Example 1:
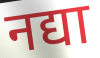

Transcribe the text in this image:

नद्या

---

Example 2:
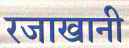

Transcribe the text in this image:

रजाखानी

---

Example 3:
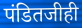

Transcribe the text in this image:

पंडितजीही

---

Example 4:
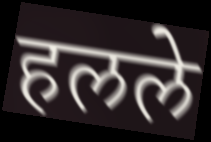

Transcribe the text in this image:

हलले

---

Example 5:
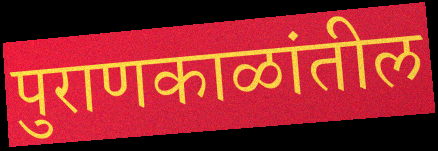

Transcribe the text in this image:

पुराणकाळांतील